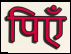
पिएँ